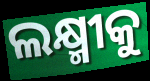
ଲକ୍ଷ୍ମୀକୁ